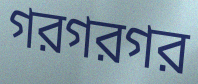
গরগরগর